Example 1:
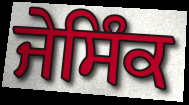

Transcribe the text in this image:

ਜੇਸਿੰਕ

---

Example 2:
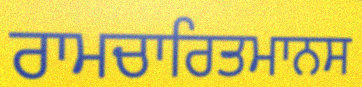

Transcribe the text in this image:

ਰਾਮਚਾਰਿਤਮਾਨਸ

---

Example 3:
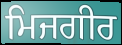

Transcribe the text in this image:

ਮਿਜਗੀਰ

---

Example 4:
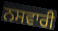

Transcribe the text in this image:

ਨਸਵਾਰੀ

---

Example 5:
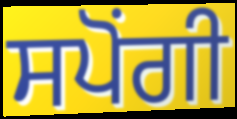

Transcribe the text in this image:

ਸਪੋਂਗੀ